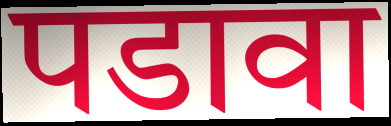
पडावा